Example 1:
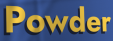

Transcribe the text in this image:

Powder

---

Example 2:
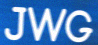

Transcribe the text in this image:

JWG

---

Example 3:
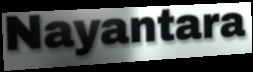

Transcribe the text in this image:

Nayantara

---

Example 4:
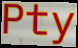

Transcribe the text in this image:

Pty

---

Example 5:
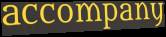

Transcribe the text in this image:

accompany